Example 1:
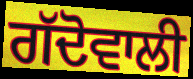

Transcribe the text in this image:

ਗੱਦੋਵਾਲੀ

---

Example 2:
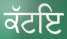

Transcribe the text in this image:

ਕੱਟਇ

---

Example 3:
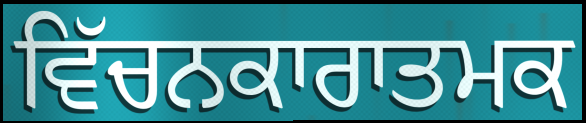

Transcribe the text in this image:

ਵਿੱਚਨਕਾਰਾਤਮਕ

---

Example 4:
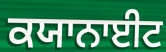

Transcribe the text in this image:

ਕਯਾਨਾਈਟ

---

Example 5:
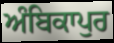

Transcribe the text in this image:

ਅੰਬਿਕਾਪੁਰ